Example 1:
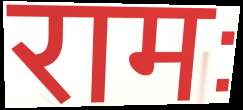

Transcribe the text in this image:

रामः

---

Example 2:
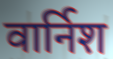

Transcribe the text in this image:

वार्निश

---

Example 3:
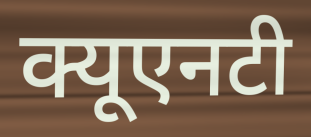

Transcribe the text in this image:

क्यूएनटी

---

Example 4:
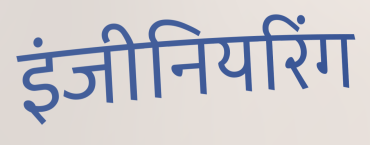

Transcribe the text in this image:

इंजीनियरिंग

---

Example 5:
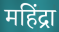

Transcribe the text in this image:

महिंद्रा